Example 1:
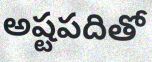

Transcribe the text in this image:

అష్టపదితో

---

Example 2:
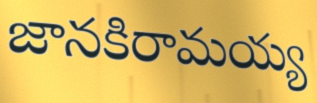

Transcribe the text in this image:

జానకిరామయ్య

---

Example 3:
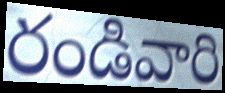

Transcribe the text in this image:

రండివారి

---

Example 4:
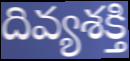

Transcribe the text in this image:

దివ్యశక్తి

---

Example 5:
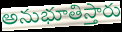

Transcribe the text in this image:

అనుభూతిస్తారు